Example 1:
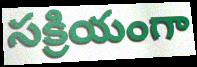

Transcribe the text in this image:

సక్రియంగా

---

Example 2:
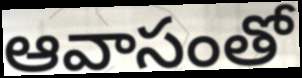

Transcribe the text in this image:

ఆవాసంతో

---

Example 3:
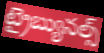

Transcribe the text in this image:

ట్రైబ్యునల్స్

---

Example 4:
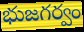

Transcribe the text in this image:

భుజగర్వం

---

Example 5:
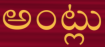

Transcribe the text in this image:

అంట్లు